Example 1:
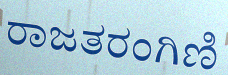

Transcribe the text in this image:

ರಾಜತರಂಗಿಣಿ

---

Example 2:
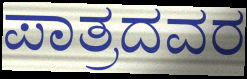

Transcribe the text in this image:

ಪಾತ್ರದವರ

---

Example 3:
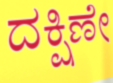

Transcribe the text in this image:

ದಕ್ಷಿಣೇ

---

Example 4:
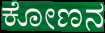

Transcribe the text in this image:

ಕೋಣನ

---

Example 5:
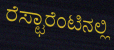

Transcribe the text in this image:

ರೆಸ್ಟಾರೆಂಟಿನಲ್ಲಿ